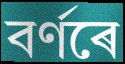
বৰ্ণৰে